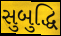
સુબુદ્ધિ